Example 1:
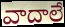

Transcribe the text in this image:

వాదాలే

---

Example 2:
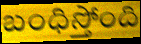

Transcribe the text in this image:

బంధిస్తోంది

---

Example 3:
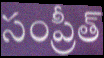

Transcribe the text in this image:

సంప్రీత్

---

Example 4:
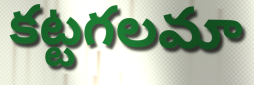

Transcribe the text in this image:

కట్టగలమా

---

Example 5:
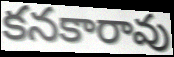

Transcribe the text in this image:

కనకారావు